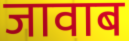
जावाब